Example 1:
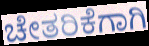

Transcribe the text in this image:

ಚೇತರಿಕೆಗಾಗಿ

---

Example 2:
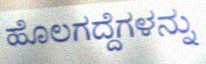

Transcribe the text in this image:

ಹೊಲಗದ್ದೆಗಳನ್ನು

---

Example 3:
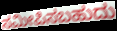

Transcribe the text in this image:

ಸಮೀಪಿಸಬಹುದು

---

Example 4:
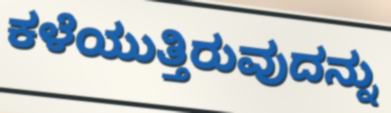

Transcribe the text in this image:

ಕಳೆಯುತ್ತಿರುವುದನ್ನು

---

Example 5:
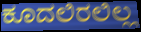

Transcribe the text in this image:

ಕೂದಲಿರಲಿಲ್ಲ